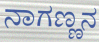
ನಾಗಣ್ಣನ